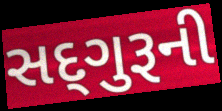
સદ્‌ગુરૂની